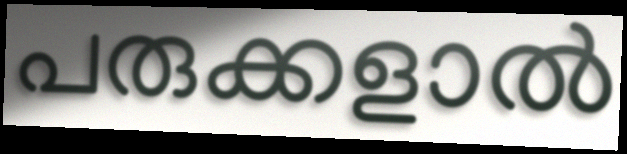
പരുക്കളാൽ